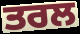
ਤਰਲ